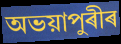
অভয়াপুৰীৰ